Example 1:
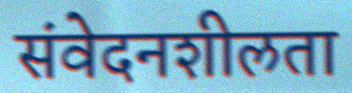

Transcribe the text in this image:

संवेदनशीलता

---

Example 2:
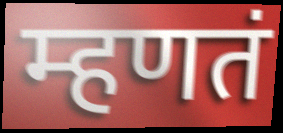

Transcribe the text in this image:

म्हणतं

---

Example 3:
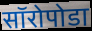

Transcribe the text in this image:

सॉरोपोडा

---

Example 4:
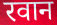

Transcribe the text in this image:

रवान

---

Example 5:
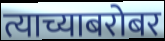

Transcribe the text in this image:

त्याच्याबरोबर